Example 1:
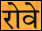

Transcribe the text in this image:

रोवे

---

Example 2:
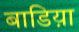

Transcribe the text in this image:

बाडिय़ा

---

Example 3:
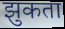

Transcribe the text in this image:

झुकता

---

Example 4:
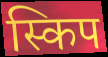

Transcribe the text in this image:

स्किप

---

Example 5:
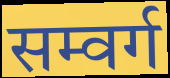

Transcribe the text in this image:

सम्वर्ग